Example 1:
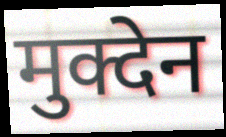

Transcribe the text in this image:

मुक्देन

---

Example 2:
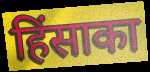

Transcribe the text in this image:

हिंसाका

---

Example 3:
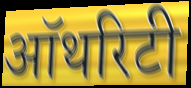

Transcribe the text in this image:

ऑथरिटी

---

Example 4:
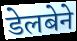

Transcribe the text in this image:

डेलबेने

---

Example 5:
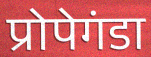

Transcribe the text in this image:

प्रोपेगंडा